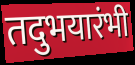
तदुभयारंभी